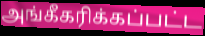
அங்கீகரிக்கப்பட்ட